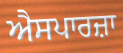
ਐਸਪਾਰਜ਼ਾ